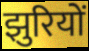
झुरियों